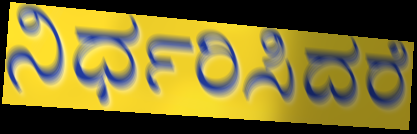
ನಿರ್ಧರಿಸಿದರೆ